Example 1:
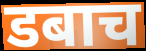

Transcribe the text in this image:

डबाच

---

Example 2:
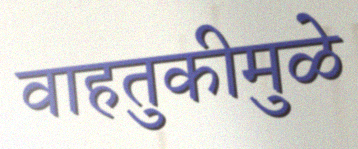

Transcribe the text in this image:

वाहतुकीमुळे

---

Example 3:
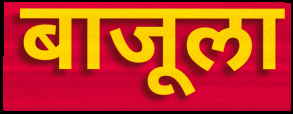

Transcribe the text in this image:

बाजूला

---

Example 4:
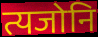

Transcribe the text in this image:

त्यजोनि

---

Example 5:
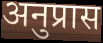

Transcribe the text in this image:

अनुप्रास